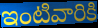
ఇంటివారికి